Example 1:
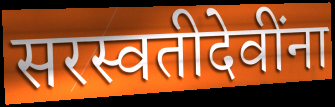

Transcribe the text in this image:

सरस्वतीदेवींना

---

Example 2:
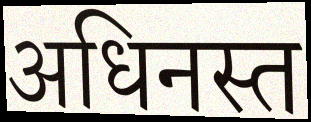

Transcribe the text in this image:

अधिनस्त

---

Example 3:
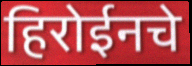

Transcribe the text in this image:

हिरोईनचे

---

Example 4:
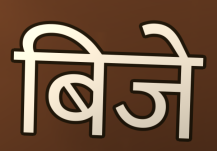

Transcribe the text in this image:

बिजे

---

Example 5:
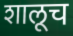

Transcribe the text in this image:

शालूच